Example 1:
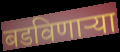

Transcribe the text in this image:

बडविणाऱ्या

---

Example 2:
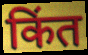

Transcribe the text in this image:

किंत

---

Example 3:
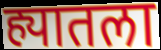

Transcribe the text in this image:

ह्यातला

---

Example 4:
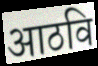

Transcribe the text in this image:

आठवि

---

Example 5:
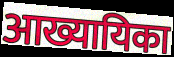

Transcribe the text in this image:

आख्यायिका